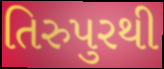
તિરુપુરથી